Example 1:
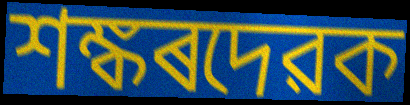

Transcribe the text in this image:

শঙ্কৰদেৱক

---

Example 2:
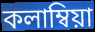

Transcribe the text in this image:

কলাম্বিয়া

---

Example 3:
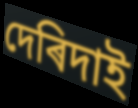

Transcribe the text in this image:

দেৰিদাই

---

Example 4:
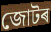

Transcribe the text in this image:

জোটৰ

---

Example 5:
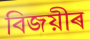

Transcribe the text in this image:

বিজয়ীৰ